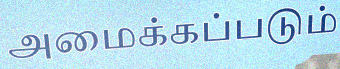
அமைக்கப்படும்